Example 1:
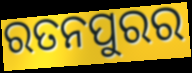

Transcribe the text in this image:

ରତନପୁରର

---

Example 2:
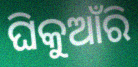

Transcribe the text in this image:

ଘିକୁଆଁରି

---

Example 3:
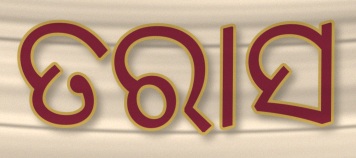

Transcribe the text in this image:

ତରାସ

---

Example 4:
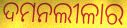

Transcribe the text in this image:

ଦମନଲୀଳାର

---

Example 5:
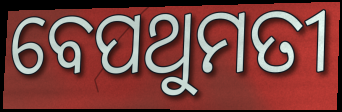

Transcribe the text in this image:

ବେପଥୁମତୀ